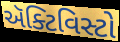
ઍક્ટિવિસ્ટો